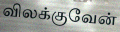
விலக்குவேன்